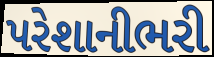
પરેશાનીભરી